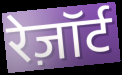
रेज़ॉर्ट